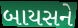
બાયસને